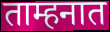
ताम्हनात